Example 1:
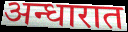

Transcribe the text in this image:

अन्धारात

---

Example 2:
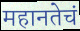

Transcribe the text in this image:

महानतेचं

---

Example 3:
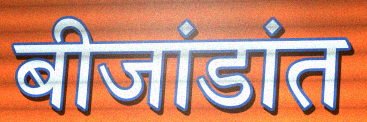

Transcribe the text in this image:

बीजांडांत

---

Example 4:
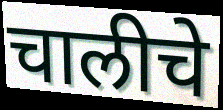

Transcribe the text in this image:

चालीचे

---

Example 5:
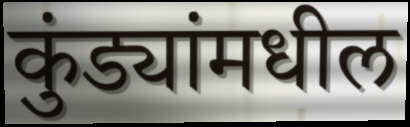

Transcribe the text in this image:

कुंड्यांमधील